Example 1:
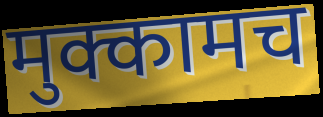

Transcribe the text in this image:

मुक्कामच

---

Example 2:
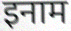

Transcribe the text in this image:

इनाम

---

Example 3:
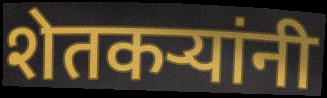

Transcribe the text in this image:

शेतकर्‍यांनी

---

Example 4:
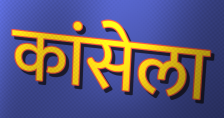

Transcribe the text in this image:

कांसेला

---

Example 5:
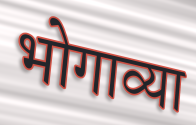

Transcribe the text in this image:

भोगाव्या